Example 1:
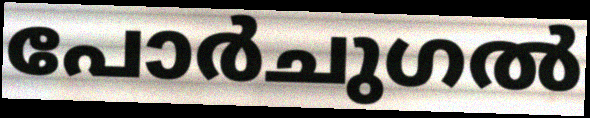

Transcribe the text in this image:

പോർചുഗൽ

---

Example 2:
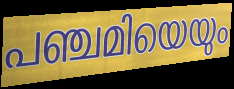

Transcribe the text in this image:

പഞ്ചമിയെയും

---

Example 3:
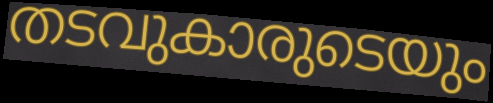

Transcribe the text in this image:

തടവുകാരുടെയും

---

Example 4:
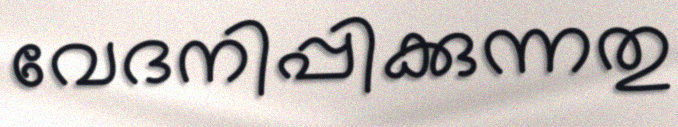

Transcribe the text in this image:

വേദനിപ്പിക്കുന്നതു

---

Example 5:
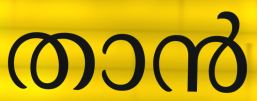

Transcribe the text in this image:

താൻ